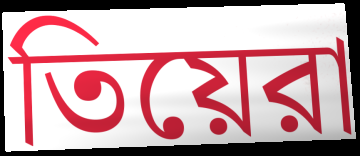
তিয়েরা